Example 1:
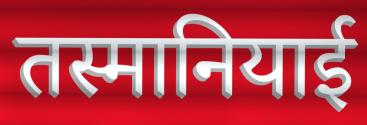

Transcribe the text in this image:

तस्मानियाई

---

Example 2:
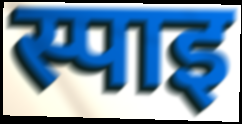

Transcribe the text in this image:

स्पाइ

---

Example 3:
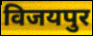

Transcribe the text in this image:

विजयपुर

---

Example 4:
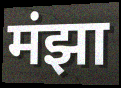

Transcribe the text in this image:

मंझा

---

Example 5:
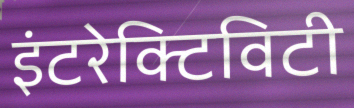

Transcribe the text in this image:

इंटरेक्टिविटी